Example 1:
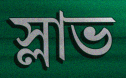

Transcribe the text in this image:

স্লাভ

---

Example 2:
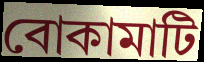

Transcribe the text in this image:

বোকামাটি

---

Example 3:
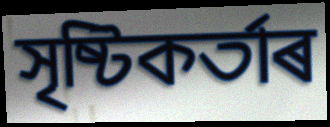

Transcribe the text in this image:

সৃষ্টিকৰ্তাৰ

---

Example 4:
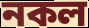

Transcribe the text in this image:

নকল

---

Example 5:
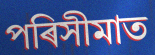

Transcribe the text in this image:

পৰিসীমাত